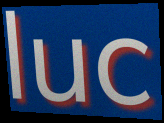
luc